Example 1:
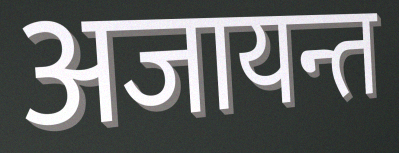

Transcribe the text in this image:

अजायन्त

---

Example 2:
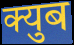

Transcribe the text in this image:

क्युब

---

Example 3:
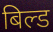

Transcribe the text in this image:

बिल्ड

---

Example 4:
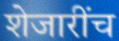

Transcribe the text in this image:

शेजारींच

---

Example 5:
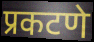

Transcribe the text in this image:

प्रकटणे